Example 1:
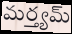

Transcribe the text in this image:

మర్త్యమ్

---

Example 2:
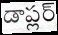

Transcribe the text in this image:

డాప్లర్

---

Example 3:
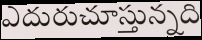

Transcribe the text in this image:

ఎదురుచూస్తున్నది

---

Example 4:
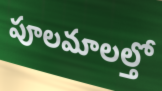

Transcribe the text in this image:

పూలమాలల్తో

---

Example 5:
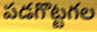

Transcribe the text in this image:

పడగొట్టగల